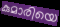
കുമാരിയെ